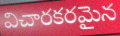
విచారకరమైన